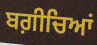
ਬਗ਼ੀਚਿਆਂ